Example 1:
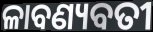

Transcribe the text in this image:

ଳାବଣ୍ୟବତୀ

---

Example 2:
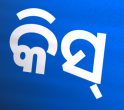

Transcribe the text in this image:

କିସ୍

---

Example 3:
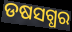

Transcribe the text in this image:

ଡଷସଗ୍ଧର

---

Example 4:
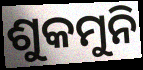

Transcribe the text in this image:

ଶୁକମୁନି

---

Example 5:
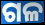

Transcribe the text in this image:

ଗଳ